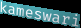
kameswari